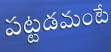
పట్టడమంటే